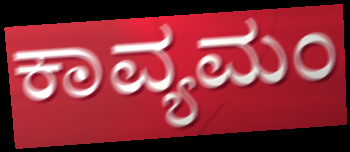
ಕಾವ್ಯಮಂ